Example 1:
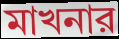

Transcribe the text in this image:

মাখনার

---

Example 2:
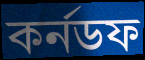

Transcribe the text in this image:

কর্নডফ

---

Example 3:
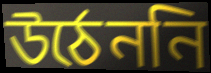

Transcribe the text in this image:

উঠেননি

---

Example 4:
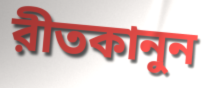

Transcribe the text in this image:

রীতকানুন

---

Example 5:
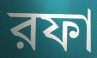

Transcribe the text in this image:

রফা